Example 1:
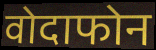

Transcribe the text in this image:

वोदाफोन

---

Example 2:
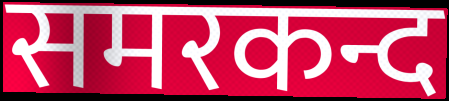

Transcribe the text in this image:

समरकन्द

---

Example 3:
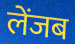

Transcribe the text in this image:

लेंजब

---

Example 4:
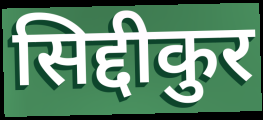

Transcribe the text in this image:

सिद्दीकुर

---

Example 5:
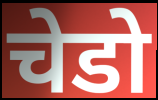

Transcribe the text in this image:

चेडो